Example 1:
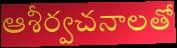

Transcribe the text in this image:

ఆశీర్వచనాలతో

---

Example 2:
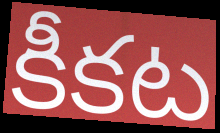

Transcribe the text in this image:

కీకట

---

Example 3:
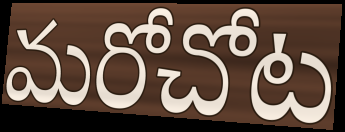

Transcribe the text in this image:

మరోచోట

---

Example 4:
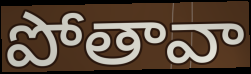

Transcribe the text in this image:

పోతావా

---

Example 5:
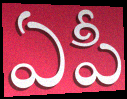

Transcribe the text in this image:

ఏపీ